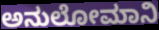
ಅನುಲೋಮಾನಿ